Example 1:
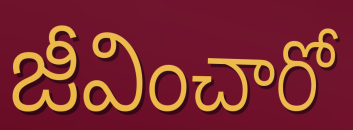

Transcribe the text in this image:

జీవించారో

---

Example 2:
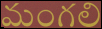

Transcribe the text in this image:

మంగలి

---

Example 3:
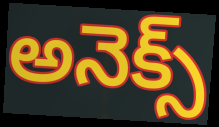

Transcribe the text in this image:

అనెక్స్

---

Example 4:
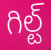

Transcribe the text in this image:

గిల్ట్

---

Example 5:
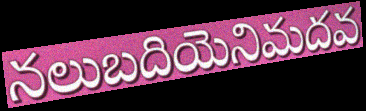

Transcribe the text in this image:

నలుబదియెనిమదవ